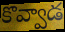
కొవ్వాడ